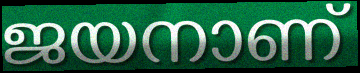
ജയനാണ്